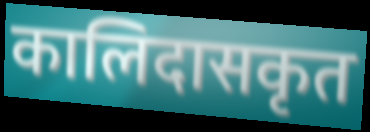
कालिदासकृत